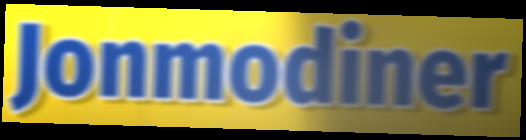
Jonmodiner